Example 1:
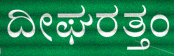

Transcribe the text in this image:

ದೀಘರತ್ತಂ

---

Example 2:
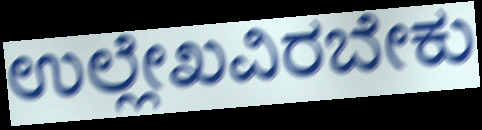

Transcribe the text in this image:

ಉಲ್ಲೇಖವಿರಬೇಕು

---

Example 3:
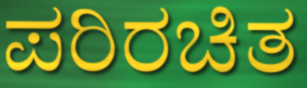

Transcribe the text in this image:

ಪರಿರಚಿತ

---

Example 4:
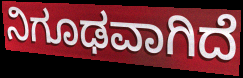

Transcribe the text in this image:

ನಿಗೂಢವಾಗಿದೆ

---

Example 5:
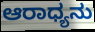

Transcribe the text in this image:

ಆರಾಧ್ಯನು